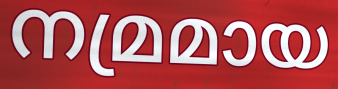
നമ്രമായ